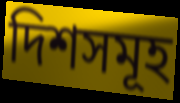
দিশসমূহ